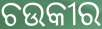
ଚଉକୀର